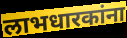
लाभधारकांना